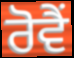
ਰੋਵੈਂ